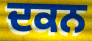
ਦਕਨ